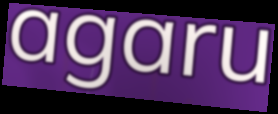
agaru